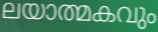
ലയാത്മകവും